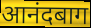
आनंदबाग